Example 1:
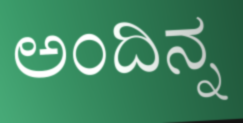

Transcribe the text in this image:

ಅಂದಿನ್ನ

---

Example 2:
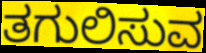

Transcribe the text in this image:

ತಗುಲಿಸುವ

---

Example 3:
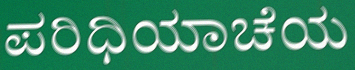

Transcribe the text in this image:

ಪರಿಧಿಯಾಚೆಯ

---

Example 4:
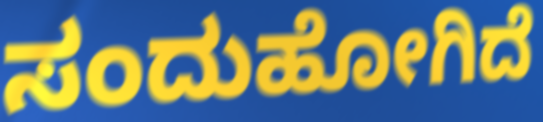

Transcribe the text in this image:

ಸಂದುಹೋಗಿದೆ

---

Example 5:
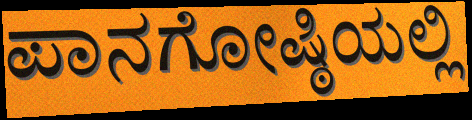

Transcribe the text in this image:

ಪಾನಗೋಷ್ಠಿಯಲ್ಲಿ